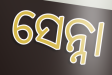
ସେନ୍ନା